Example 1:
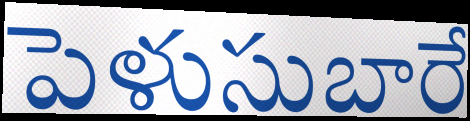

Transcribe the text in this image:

పెళుసుబారే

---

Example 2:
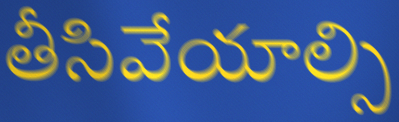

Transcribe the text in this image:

తీసివేయాల్సి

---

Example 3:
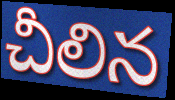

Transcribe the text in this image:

చీలిన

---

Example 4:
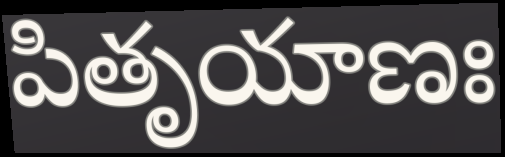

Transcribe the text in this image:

పితృయాణః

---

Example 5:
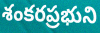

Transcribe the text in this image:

శంకరప్రభుని